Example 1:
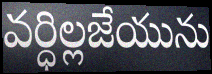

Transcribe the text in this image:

వర్ధిల్లజేయును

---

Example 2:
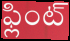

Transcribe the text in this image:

ఫ్లింట్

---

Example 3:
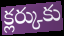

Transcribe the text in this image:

క్లర్కుకు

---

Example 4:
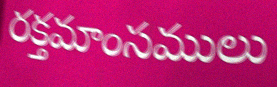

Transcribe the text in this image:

రక్తమాంసములు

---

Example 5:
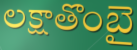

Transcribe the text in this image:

లక్షాతొంబై